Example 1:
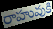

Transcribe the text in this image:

రాహువుకి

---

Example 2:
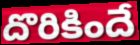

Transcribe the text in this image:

దొరికిందే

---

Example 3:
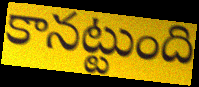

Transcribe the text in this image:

కానట్టుంది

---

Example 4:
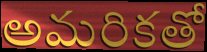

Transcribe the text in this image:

అమరికతో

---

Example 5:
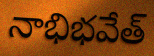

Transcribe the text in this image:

నాభిభవేత్